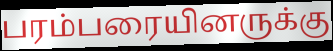
பரம்பரையினருக்கு